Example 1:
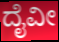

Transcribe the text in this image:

ದೈವೀ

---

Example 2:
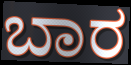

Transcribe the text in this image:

ಬಾರ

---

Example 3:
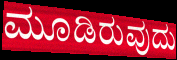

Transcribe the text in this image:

ಮೂಡಿರುವುದು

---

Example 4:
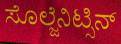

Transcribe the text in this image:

ಸೊಲ್ಜೆನಿಟ್ಸಿನ್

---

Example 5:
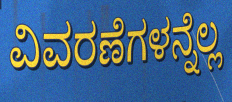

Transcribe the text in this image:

ವಿವರಣೆಗಳನ್ನೆಲ್ಲ